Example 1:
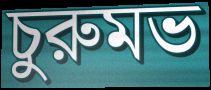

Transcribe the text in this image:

চুরুমভ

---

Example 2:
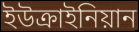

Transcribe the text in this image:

ইউক্রাইনিয়ান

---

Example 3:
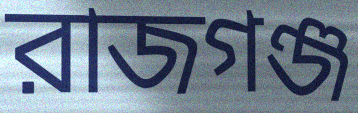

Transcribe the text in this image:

রাজগঞ্জ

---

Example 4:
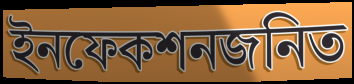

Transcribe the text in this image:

ইনফেকশনজনিত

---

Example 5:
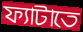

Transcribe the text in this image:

ফ্যাটাতে